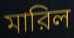
মারিল